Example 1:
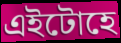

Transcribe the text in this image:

এইটোহে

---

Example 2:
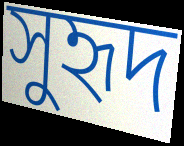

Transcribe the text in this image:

সুহৃদ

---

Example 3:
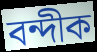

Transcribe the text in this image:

বন্দীক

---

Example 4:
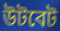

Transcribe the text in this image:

উটবেট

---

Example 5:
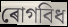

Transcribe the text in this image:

ৰোগবিধ